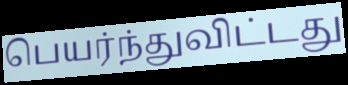
பெயர்ந்துவிட்டது